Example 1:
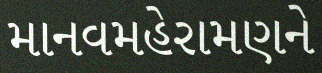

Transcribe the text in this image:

માનવમહેરામણને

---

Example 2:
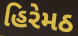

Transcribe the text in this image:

હિરેમઠ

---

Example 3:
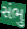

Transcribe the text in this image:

સંભુ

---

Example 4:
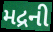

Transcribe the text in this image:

મદ્રની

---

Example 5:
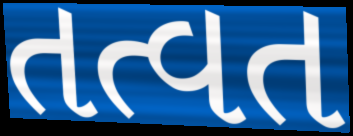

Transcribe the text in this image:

તત્વત